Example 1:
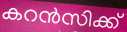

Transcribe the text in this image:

കറൻസിക്ക്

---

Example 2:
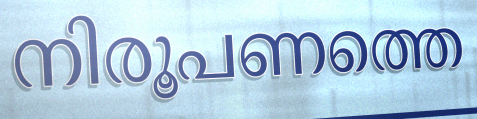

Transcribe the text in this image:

നിരൂപണത്തെ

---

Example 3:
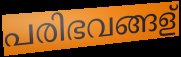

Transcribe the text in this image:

പരിഭവങ്ങള്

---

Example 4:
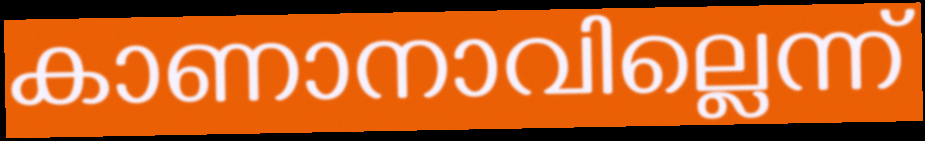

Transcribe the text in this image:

കാണാനാവില്ലെന്ന്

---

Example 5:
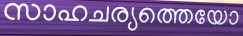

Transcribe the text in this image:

സാഹചര്യത്തെയോ